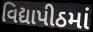
વિદ્યાપીઠમાં